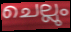
ചെല്ലും